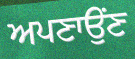
ਅਪਣਾਉਂਣ